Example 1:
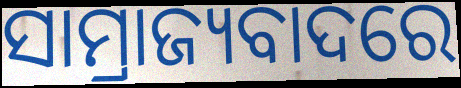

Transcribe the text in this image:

ସାମ୍ରାଜ୍ୟବାଦରେ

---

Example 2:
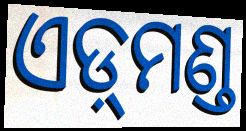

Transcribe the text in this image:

ଏଡ଼୍‌ମଣ୍ଡ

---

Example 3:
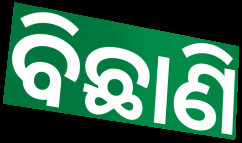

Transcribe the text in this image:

ବିଛାଣି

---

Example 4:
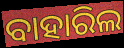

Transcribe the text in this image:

ବାହାରିଲ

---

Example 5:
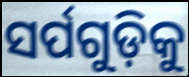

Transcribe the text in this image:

ସର୍ପଗୁଡ଼ିକୁ